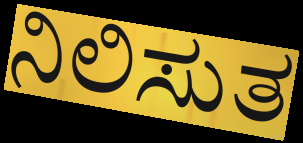
ನಿಲಿಸುತ